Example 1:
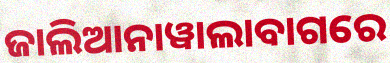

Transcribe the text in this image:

ଜାଲିଆନାୱାଲାବାଗରେ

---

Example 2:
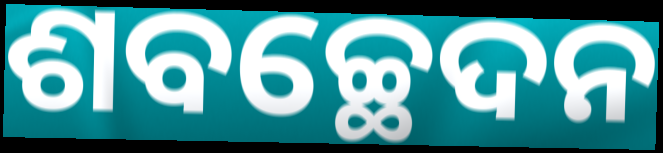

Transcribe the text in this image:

ଶବଚ୍ଛେଦନ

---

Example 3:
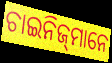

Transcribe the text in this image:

ଚାଇନିଜ୍‍ମାନେ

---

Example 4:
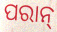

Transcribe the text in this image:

ପରାନ୍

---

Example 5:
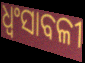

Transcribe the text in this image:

ଧ୍ୱଂସାବଳୀ